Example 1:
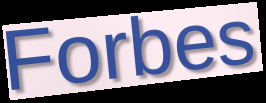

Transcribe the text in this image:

Forbes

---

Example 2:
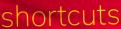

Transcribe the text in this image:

shortcuts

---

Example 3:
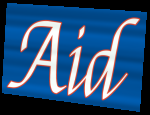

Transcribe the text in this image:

Aid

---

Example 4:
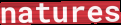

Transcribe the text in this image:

natures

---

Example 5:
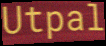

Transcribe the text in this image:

Utpal